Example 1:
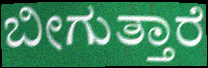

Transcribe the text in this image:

ಬೀಗುತ್ತಾರೆ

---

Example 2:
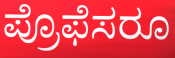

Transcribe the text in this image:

ಪ್ರೊಫೆಸರೂ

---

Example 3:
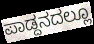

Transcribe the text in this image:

ಪಾಡ್ದನದಲ್ಲೂ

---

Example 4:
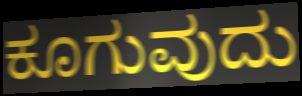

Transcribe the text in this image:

ಕೂಗುವುದು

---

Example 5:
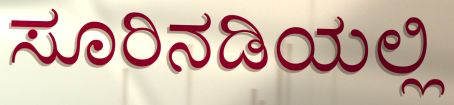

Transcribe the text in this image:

ಸೂರಿನಡಿಯಲ್ಲಿ